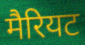
मैरियट